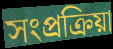
সংপ্ৰক্ৰিয়া